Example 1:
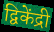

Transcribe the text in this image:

द्विकेंद्री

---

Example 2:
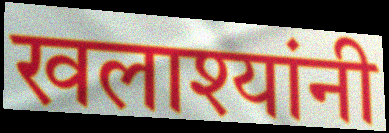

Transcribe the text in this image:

खलाश्यांनी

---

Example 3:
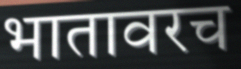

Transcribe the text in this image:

भातावरच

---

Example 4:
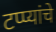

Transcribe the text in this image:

टप्प्यांचे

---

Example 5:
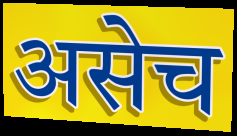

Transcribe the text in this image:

असेच